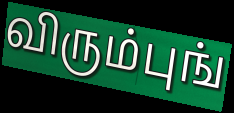
விரும்புங்